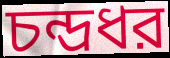
চন্দ্রধর